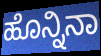
ಹೊನ್ನಿನಾ